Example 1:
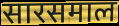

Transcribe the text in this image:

सारसमाल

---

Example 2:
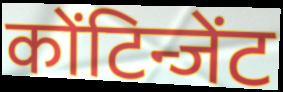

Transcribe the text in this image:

कोंटिन्जेंट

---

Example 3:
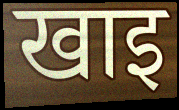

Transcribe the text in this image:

खाइ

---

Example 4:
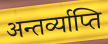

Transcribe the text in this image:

अन्तर्व्याप्ति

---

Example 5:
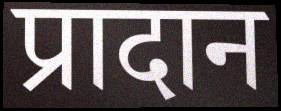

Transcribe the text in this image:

प्रादान